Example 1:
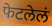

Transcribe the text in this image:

फेटलेलं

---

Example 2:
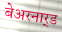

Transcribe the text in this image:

बेअरनार्ड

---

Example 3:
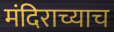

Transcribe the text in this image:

मंदिराच्याच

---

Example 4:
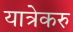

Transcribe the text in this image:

यात्रेकरु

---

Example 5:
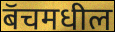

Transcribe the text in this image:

बॅचमधील